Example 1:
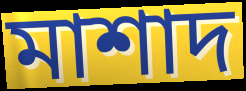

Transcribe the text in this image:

মাশাদ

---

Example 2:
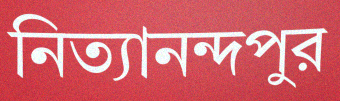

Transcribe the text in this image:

নিত্যানন্দপুর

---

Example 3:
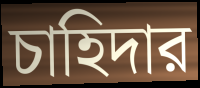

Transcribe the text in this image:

চাহিদার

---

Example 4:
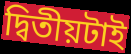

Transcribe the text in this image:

দ্বিতীয়টাই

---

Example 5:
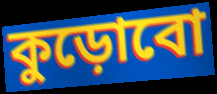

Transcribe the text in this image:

কুড়োবো